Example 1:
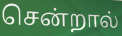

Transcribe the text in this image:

சென்றால்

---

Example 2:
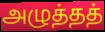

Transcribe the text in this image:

அழுத்தத்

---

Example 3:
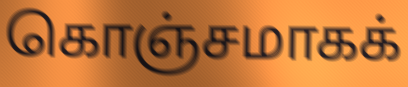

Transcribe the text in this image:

கொஞ்சமாகக்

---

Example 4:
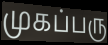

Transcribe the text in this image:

முகப்பரு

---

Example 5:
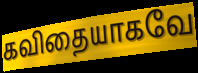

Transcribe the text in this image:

கவிதையாகவே